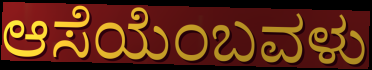
ಆಸೆಯೆಂಬವಳು